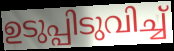
ഉടുപ്പിടുവിച്ച്